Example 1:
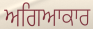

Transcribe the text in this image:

ਅਗਿਆਕਾਰ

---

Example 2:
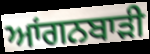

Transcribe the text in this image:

ਆਂਗਨਬਾੜੀ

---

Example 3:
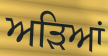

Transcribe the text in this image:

ਅੜਿਆਂ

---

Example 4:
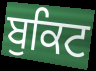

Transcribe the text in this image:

ਬੁਕਿਟ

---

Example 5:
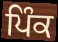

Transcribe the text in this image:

ਪਿੰਕ